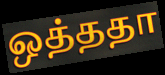
ஒத்ததா